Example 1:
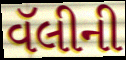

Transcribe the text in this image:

વૅલીની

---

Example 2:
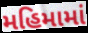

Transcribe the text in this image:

મહિમામાં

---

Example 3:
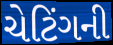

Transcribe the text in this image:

ચેટિંગની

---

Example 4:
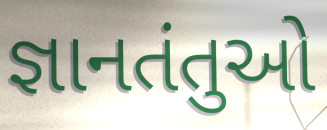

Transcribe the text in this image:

જ્ઞાનતંતુઓ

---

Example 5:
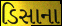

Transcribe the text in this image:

ડિસાના